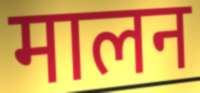
मालन